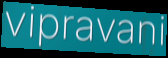
vipravani